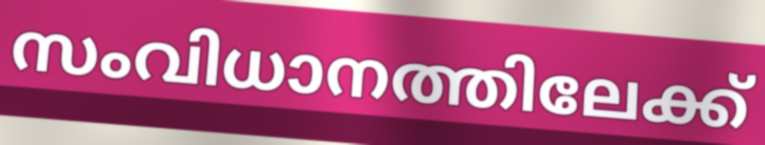
സംവിധാനത്തിലേക്ക്